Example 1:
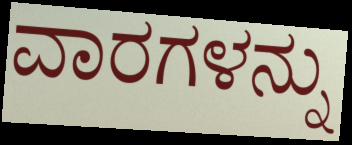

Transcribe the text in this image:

ವಾರಗಳನ್ನು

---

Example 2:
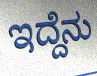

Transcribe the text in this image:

ಇದ್ದೆನು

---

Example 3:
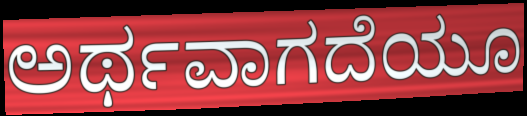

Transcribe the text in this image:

ಅರ್ಥವಾಗದೆಯೂ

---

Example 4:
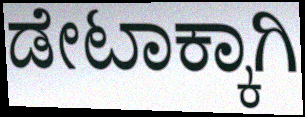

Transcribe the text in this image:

ಡೇಟಾಕ್ಕಾಗಿ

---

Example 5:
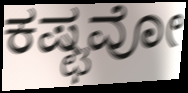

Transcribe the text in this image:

ಕಷ್ಟವೋ